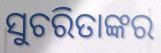
ସୁଚରିତାଙ୍କର